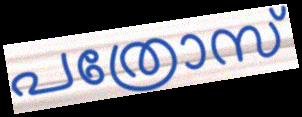
പത്രോസ്